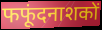
फफूंदनाशकों